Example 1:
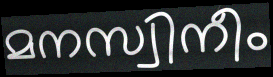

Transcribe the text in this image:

മനസ്വിനീം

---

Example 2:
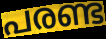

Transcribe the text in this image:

പരണ്ട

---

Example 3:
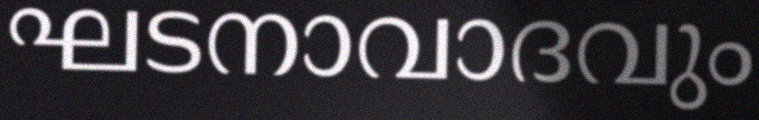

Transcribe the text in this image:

ഘടനാവാദവും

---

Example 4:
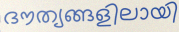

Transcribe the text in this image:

ദൗത്യങ്ങളിലായി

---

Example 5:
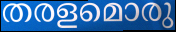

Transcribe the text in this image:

തരളമൊരു